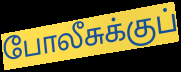
போலீசுக்குப்